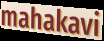
mahakavi